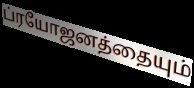
ப்ரயோஜனத்தையும்